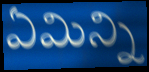
ఏమిన్ని